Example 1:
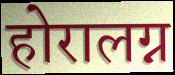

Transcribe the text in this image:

होरालग्न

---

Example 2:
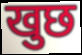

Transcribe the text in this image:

खुछ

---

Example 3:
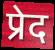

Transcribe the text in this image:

प्रेद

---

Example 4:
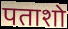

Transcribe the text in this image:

पताशो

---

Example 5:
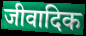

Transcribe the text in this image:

जीवादिक